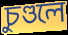
চুণ্ডলে